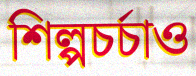
শিল্পচর্চাও